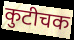
कुटीचक